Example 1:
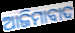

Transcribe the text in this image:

ଆଜିମାବାଦ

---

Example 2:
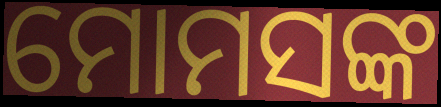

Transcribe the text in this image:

ମୋମସଙ୍କ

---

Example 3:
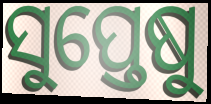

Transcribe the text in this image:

ସୁପ୍ତେଷୁ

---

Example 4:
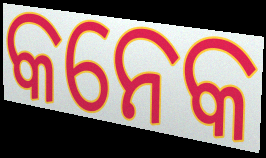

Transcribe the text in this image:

କନେକ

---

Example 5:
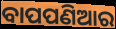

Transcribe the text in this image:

ବାପପଣିଆର